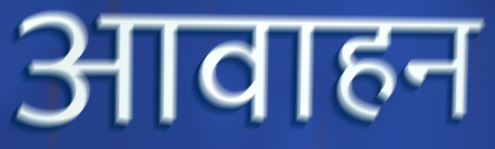
आवाहन